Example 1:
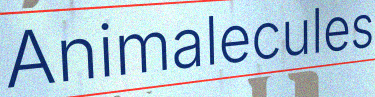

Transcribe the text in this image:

Animalecules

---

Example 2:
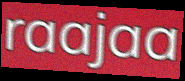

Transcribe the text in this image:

raajaa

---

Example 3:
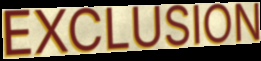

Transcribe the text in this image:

EXCLUSION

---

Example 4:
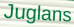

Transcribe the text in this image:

Juglans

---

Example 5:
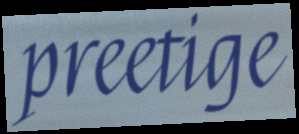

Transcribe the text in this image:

preetige